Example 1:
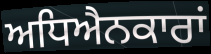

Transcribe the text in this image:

ਅਧਿਐਨਕਾਰਾਂ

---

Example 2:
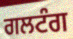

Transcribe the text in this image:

ਗਲਟੰਗ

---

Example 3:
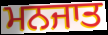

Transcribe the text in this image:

ਮਨਜਾਤ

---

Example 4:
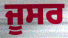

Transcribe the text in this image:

ਜੂਸਰ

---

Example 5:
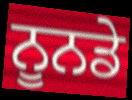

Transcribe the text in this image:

ਨੂਨਡੇ